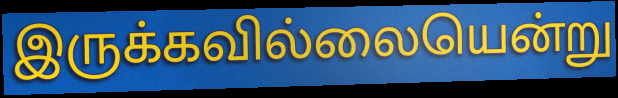
இருக்கவில்லையென்று